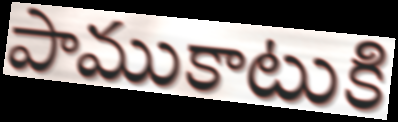
పాముకాటుకి